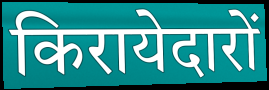
किरायेदारों